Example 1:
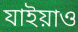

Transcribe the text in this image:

যাইয়াও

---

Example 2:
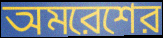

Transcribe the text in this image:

অমরেশের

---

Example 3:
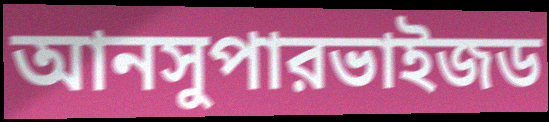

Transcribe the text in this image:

আনসুপারভাইজড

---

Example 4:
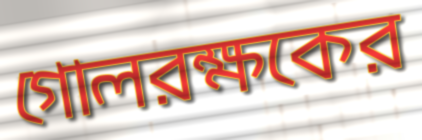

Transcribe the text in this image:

গোলরক্ষকের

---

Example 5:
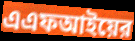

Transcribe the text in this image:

এএফআইয়ের